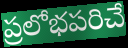
ప్రలోభపరిచే